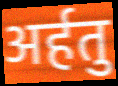
अर्हतु